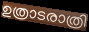
ഉത്രാടരാത്രി